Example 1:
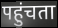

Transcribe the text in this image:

पहुंचता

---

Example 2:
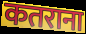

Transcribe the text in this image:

कतराना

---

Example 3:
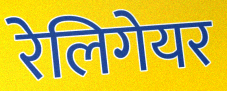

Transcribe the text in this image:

रेलिगेयर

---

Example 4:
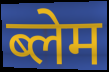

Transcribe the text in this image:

ब्लेम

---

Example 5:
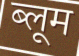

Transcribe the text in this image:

ब्लूम